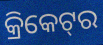
କ୍ରିକେଟ୍‌ର